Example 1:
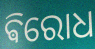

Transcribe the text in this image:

ଵିରୋଧ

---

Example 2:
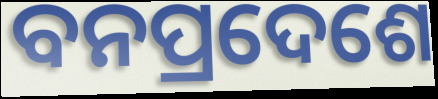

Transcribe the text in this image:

ବନପ୍ରଦେଶେ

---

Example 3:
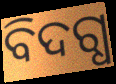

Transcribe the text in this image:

ବିଦଗ୍ଧ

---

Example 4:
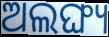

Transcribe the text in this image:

ଅଲଙ୍ଘ୍ୟ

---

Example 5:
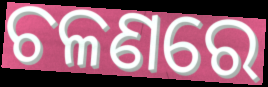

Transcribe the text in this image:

ଚଳଣରେ